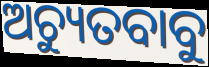
ଅଚ୍ୟୁତବାବୁ